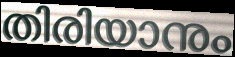
തിരിയാനും